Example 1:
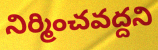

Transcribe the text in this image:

నిర్మించవద్దని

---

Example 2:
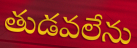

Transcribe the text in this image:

తుడవలేను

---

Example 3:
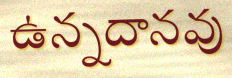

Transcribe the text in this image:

ఉన్నదానవు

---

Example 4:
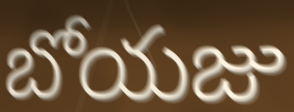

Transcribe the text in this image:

బోయజు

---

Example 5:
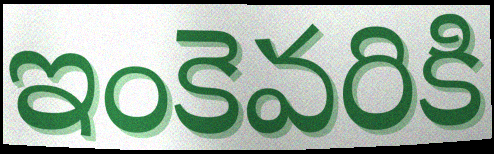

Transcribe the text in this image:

ఇంకెవరికి